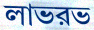
লাভরভ